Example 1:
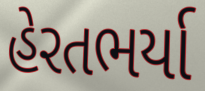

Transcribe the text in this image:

હેરતભર્યા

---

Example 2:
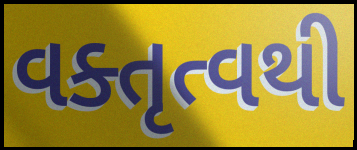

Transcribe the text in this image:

વક્તૃત્વથી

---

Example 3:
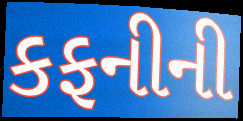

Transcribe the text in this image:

કફનીની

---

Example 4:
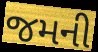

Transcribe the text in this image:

જમની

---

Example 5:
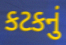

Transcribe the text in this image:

કટકનું